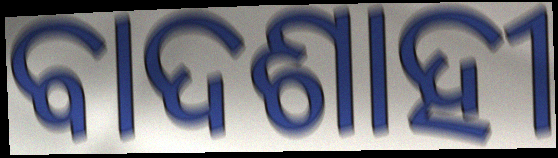
ବାଦଶାହୀ